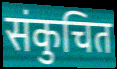
संकुचित